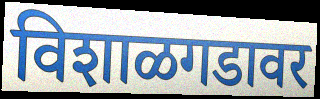
विशाळगडावर